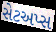
સેટઅપ્સ